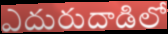
ఎదురుదాడిలో